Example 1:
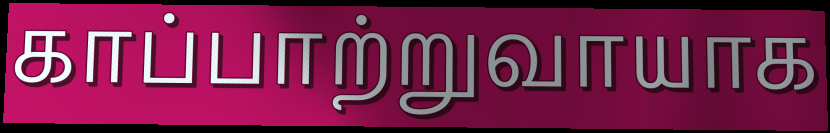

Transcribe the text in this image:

காப்பாற்றுவாயாக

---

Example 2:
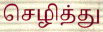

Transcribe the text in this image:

செழித்து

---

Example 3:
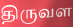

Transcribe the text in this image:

திருவள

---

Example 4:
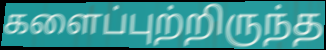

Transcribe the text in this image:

களைப்புற்றிருந்த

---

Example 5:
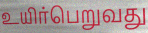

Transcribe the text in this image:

உயிர்பெறுவது